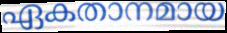
ഏകതാനമായ